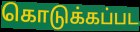
கொடுக்கப்பட